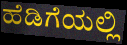
ಹೆಡಿಗೆಯಲ್ಲಿ